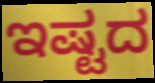
ಇಷ್ಟದ